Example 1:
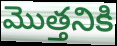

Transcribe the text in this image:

మొత్తనికి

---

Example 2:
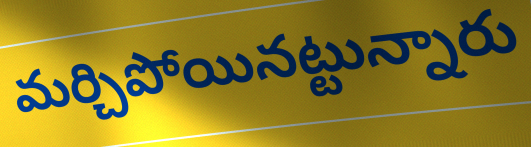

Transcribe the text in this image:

మర్చిపోయినట్టున్నారు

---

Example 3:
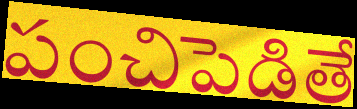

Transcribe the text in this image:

పంచిపెడితే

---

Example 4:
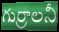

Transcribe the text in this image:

గుర్రాలనీ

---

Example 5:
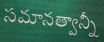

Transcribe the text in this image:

సమానత్వాన్నీ